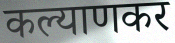
कल्याणकर